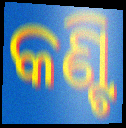
କଣ୍ଟି